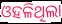
ଓହଳିଥିଲା